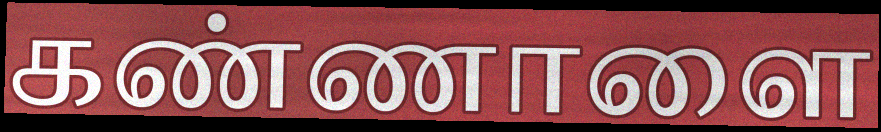
கண்ணாளை